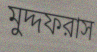
মুদ্দফরাস